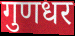
गुणधर